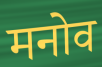
मनोव